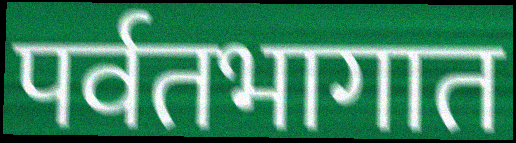
पर्वतभागात